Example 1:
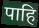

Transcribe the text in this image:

पाहि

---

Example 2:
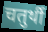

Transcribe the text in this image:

चतुर्थी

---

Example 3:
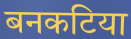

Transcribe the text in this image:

बनकटिया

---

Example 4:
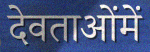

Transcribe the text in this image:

देवताओंमें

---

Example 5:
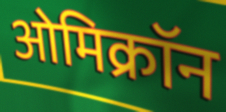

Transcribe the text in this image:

ओमिक्रॉन